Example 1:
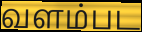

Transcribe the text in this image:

வளம்பட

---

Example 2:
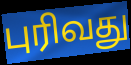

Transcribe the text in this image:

புரிவது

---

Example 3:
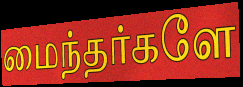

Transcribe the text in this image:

மைந்தர்களே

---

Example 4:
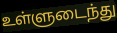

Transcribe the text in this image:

உள்ளுடைந்து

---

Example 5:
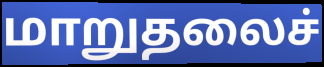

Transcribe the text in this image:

மாறுதலைச்